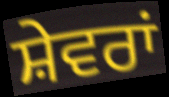
ਸ਼ੇਵਰਾਂ